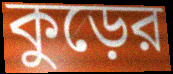
কুড়ের